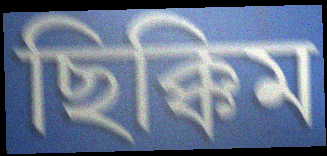
ছিক্কিম